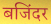
बजिंदर